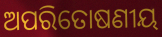
ଅପରିତୋଷଣୀୟ